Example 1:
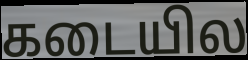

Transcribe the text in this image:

கடையில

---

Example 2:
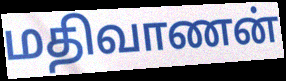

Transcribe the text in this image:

மதிவாணன்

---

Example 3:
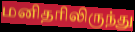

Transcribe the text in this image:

மனிதரிலிருந்து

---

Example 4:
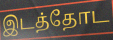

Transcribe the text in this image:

இடத்தோட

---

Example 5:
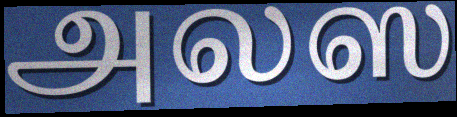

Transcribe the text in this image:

அலஸ